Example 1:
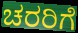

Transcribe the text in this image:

ಚರರಿಗೆ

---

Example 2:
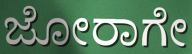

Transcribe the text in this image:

ಜೋರಾಗೇ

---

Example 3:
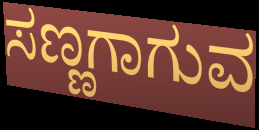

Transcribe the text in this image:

ಸಣ್ಣಗಾಗುವ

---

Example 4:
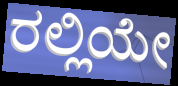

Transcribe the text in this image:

ರಲ್ಲಿಯೇ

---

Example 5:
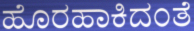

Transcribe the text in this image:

ಹೊರಹಾಕಿದಂತೆ